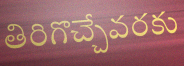
తిరిగొచ్చేవరకు